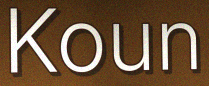
Koun